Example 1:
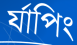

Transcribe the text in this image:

র্যাপিং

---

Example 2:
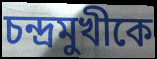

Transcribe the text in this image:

চন্দ্রমুখীকে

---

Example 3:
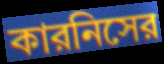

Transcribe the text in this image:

কারনিসের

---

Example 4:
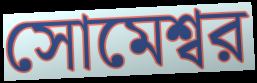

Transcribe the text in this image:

সোমেশ্বর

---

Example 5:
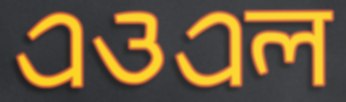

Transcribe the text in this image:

এওএল